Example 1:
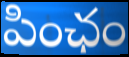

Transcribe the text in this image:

పింఛం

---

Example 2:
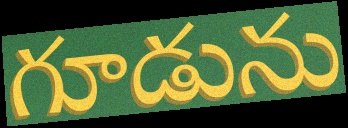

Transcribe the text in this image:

గూడును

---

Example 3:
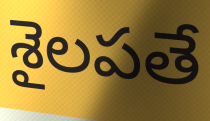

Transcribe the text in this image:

శైలపతే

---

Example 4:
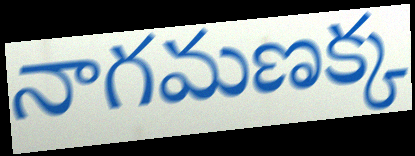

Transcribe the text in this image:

నాగమణక్క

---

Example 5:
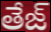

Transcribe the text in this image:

తేజ్